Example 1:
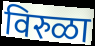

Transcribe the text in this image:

विरुळा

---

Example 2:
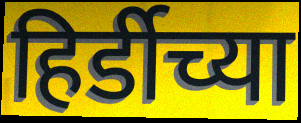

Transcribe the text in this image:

हिर्डीच्या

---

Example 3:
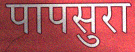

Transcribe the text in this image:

पापसुरा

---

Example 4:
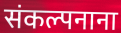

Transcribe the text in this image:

संकल्पनाना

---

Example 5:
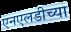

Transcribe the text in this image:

एनएलडीच्या